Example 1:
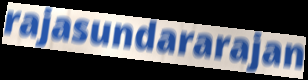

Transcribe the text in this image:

rajasundararajan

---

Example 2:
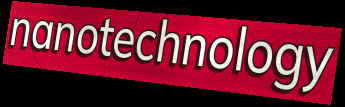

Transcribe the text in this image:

nanotechnology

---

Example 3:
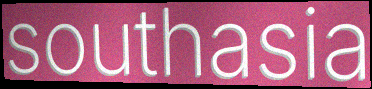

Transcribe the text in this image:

southasia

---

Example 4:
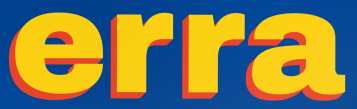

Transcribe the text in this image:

erra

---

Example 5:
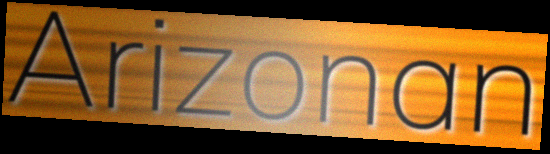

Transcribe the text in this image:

Arizonan